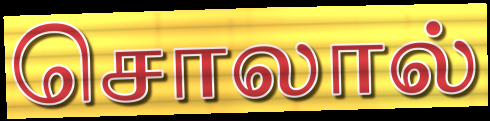
சொலால்